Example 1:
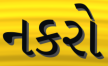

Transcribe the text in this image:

નકરો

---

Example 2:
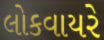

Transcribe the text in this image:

લોકવાયરે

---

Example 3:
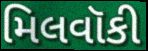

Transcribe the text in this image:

મિલવૉકી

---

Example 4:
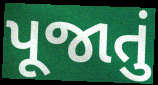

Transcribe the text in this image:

પૂજાતું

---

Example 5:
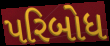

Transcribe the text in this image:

પરિબોધ